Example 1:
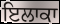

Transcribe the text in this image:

ਇਲਾਕਾ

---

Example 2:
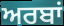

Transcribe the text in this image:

ਅਰਬਾਂ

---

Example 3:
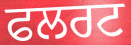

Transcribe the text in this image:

ਫਲਰਟ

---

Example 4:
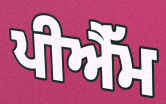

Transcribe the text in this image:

ਪੀਐੱਮ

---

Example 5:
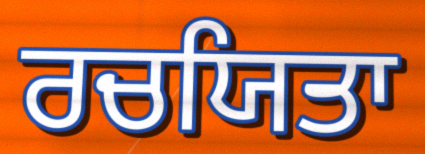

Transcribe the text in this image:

ਰਚਯਿਤਾ